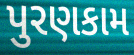
પુરણકામ